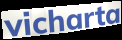
vicharta